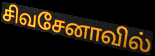
சிவசேனாவில்